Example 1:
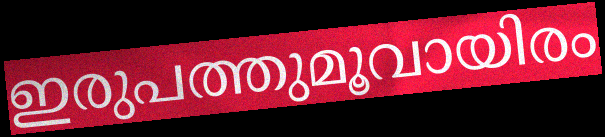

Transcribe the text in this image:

ഇരുപത്തുമൂവായിരം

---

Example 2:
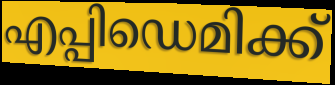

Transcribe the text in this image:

എപ്പിഡെമിക്ക്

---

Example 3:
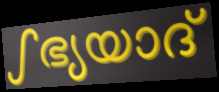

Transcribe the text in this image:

ഽഭ്യയാദ്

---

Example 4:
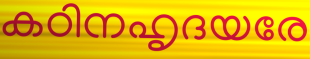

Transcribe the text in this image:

കഠിനഹൃദയരേ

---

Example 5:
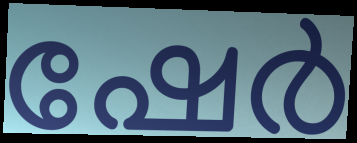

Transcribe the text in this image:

ഷേർ